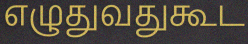
எழுதுவதுகூட